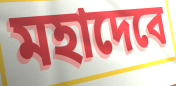
মহাদেবে